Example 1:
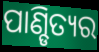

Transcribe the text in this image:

ପାଣ୍ଡିତ୍ୟର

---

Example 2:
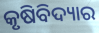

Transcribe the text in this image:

କୃଷିବିଦ୍ୟାର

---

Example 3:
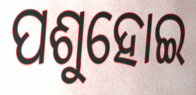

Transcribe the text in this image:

ପଶୁହୋଇ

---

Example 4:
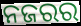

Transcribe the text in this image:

ନଜରର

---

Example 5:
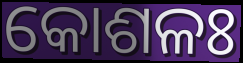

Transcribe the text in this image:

କୋଶଳଃ